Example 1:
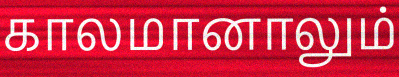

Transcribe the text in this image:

காலமானாலும்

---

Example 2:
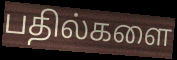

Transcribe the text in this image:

பதில்களை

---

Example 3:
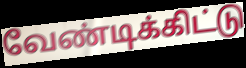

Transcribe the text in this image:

வேண்டிக்கிட்டு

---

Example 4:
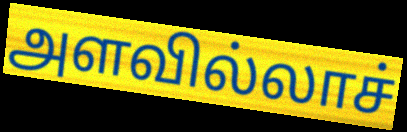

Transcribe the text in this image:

அளவில்லாச்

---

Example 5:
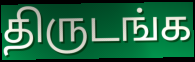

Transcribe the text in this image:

திருடங்க